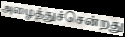
அழைத்துச்சென்றது